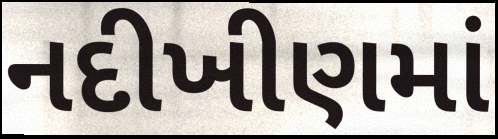
નદીખીણમાં